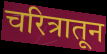
चरित्रातून